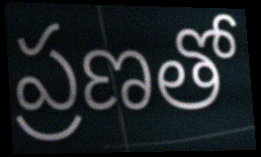
ప్రణతో